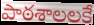
పాఠశాలలకే